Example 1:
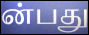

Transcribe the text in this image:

ன்பது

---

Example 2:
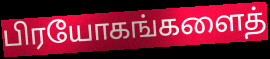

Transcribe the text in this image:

பிரயோகங்களைத்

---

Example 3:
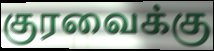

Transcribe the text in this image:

குரவைக்கு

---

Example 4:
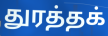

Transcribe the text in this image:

துரத்தக்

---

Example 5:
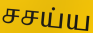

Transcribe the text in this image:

சசய்ய